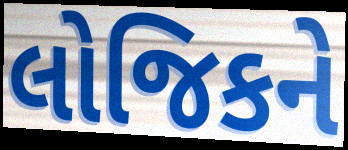
લોજિકને